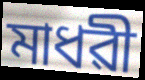
মাধৱী